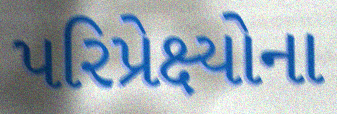
પરિપ્રેક્ષ્યોના